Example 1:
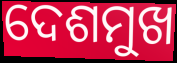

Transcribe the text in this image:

ଦେଶମୁଖ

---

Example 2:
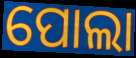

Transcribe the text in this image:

ପୋଲା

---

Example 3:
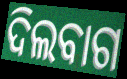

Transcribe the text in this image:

ଦିଲବାଗ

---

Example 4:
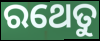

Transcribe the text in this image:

ରଥେତୁ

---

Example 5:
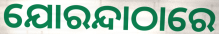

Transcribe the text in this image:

ଯୋରନ୍ଦାଠାରେ